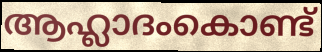
ആഹ്ലാദംകൊണ്ട്